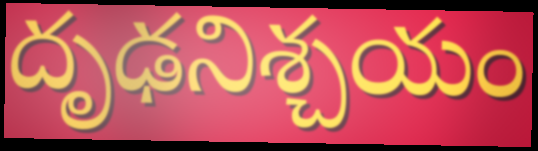
దృఢనిశ్చయం